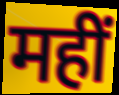
महीं